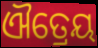
ଐତ୍ରେୟ